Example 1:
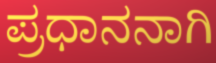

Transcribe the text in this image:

ಪ್ರಧಾನನಾಗಿ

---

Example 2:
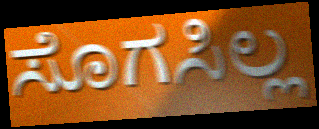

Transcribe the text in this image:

ಸೊಗಸಿಲ್ಲ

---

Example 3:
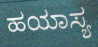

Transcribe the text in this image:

ಹಯಾಸ್ಯ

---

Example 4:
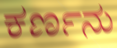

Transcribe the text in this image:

ಕರ್ಣನು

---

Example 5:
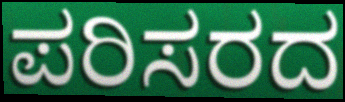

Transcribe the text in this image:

ಪರಿಸರದ